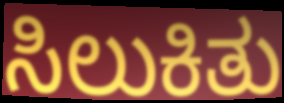
ಸಿಲುಕಿತು